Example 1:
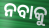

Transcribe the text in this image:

ନବାକୁ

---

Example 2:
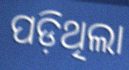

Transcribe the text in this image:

ପଡ଼ିଥିଲା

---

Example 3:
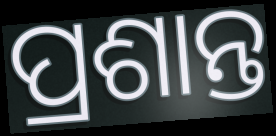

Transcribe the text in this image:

ପ୍ରଶାନ୍ତ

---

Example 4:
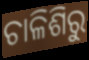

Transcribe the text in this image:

ଚାଳିଶିରୁ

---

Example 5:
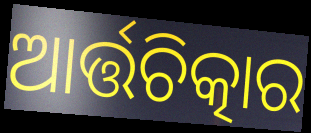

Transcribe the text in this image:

ଆର୍ତ୍ତଚିତ୍କାର